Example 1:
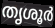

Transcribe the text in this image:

തൃശൂർ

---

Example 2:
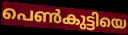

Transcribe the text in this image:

പെൺകുട്ടിയെ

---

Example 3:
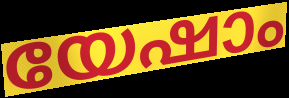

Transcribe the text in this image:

യേഷാം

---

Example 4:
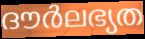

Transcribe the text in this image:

ദൗർലഭ്യത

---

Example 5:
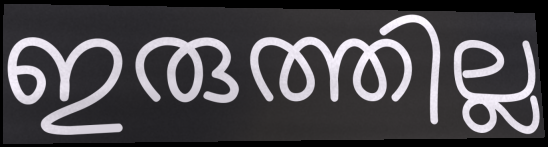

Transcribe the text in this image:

ഇരുത്തില്ല